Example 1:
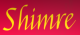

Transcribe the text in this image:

Shimre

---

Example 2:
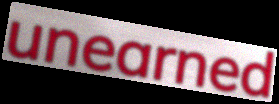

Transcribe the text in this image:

unearned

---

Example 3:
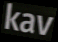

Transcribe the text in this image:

kav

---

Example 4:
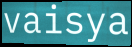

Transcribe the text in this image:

vaisya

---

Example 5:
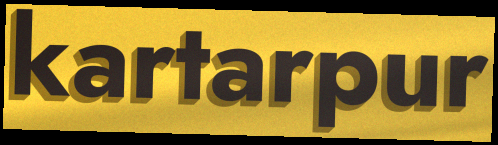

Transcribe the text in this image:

kartarpur